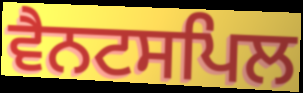
ਵੈਨਟਸਪਿਲ